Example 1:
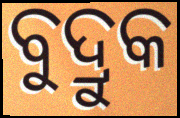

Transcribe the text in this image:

ବୁଦ୍ରୁକ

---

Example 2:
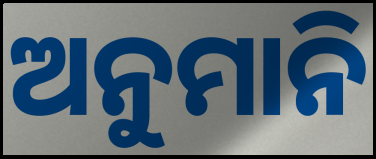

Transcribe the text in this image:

ଅନୁମାନି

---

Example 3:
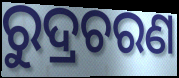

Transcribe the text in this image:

ରୁଦ୍ରଚରଣ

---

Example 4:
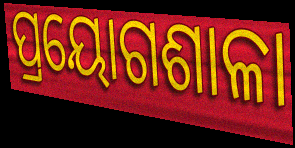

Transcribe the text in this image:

ପ୍ରୟୋଗଶାଳା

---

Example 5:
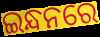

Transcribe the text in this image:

ଇନ୍ଧନରେ